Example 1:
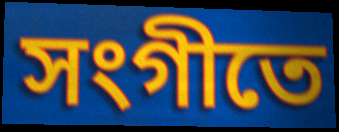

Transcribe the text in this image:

সংগীতে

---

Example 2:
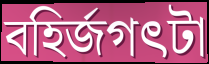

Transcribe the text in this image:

বহির্জগৎটা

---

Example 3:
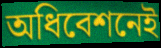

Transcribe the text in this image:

অধিবেশনেই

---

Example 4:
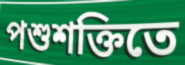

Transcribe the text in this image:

পশুশক্তিতে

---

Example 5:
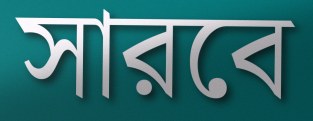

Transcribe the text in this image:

সারবে